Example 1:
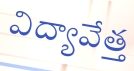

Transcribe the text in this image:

విద్యావేత్త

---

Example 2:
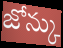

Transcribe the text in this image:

జోన్కు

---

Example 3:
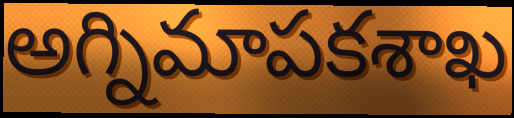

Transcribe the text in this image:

అగ్నిమాపకశాఖ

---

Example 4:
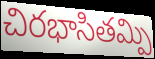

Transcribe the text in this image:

చిరభాసితమ్పి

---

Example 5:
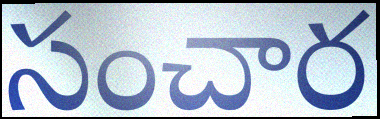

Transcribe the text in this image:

సంచార